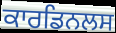
ਕਾਰਡਿਨਲਸ